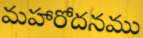
మహారోదనము